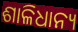
ଶାଳିଧାନ୍ୟ